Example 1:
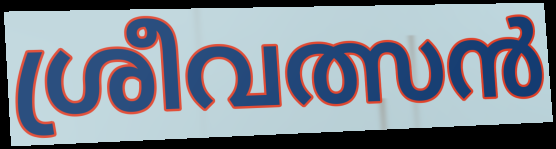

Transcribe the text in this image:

ശ്രീവത്സൻ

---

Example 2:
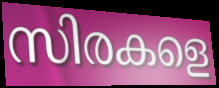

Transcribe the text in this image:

സിരകളെ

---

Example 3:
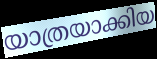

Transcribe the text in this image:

യാത്രയാക്കിയ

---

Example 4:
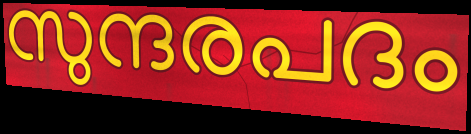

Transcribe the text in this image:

സുന്ദരപദം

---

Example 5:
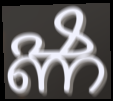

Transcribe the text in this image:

ഷ്ണ